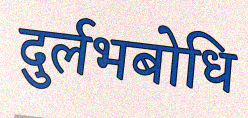
दुर्लभबोधि